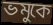
ভমুকে